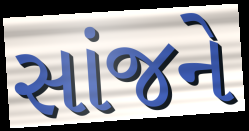
સાંજને